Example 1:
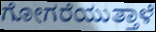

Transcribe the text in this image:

ಗೋಗರೆಯುತ್ತಾಳೆ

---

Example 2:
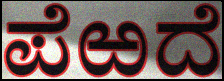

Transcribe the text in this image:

ಪೆಱದೆ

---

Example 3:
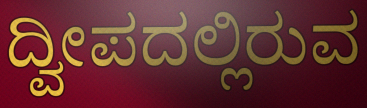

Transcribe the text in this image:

ದ್ವೀಪದಲ್ಲಿರುವ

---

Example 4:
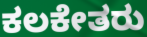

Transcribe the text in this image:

ಕಲಕೇತರು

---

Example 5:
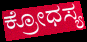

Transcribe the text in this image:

ಕ್ರೋಧಸ್ಯ